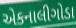
એકનાલીગોડા